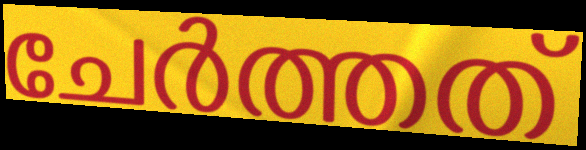
ചേർത്തത്